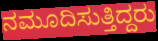
ನಮೂದಿಸುತ್ತಿದ್ದರು